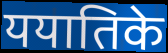
ययातिके